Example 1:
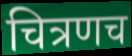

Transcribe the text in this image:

चित्रणच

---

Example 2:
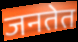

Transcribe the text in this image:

जनतेत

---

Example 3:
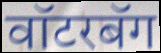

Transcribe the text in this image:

वॉटरबॅग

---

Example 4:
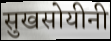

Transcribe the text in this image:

सुखसोयीनी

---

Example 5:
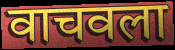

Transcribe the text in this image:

वाचवला